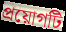
প্রয়োগটি